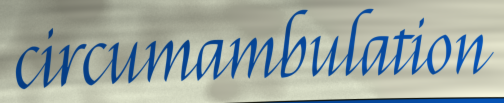
circumambulation